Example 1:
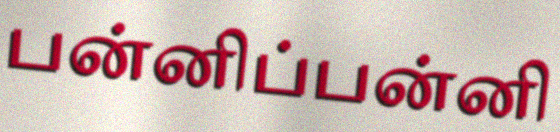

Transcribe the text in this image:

பன்னிப்பன்னி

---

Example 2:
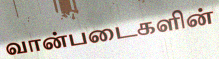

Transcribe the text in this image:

வான்படைகளின்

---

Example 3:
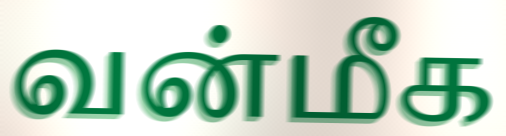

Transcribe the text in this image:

வன்மீக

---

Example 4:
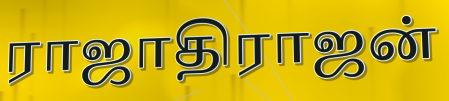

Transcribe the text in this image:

ராஜாதிராஜன்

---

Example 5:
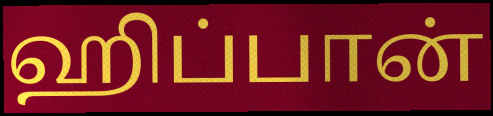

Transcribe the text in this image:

ஹிப்பான்